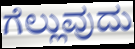
ಗೆಲ್ಲುವುದು